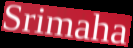
Srimaha